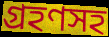
গ্রহণসহ